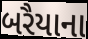
બરૈયાના